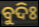
ବୁଦିଃ